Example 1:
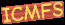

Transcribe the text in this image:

ICMFS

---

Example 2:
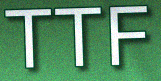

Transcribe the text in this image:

TTF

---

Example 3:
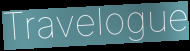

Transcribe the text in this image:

Travelogue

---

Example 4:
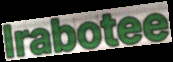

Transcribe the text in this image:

Irabotee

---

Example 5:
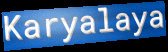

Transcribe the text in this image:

Karyalaya